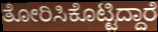
ತೋರಿಸಿಕೊಟ್ಟಿದ್ದಾರೆ